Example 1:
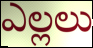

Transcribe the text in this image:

ఎల్లలు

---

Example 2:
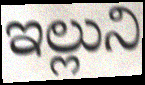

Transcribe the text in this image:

ఇల్లుని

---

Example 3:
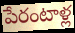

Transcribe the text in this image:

పేరంటాళ్ల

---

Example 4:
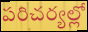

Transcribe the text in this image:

పరిచర్యల్లో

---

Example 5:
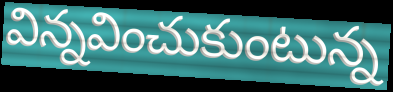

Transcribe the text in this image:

విన్నవించుకుంటున్న